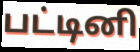
பட்டினி